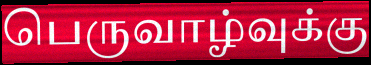
பெருவாழ்வுக்கு